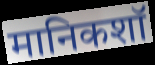
मानिकशॉ